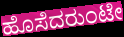
ಹೊಸೆದರುಂಟೇ